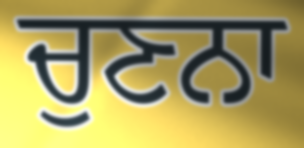
ਚੁਣਨਾ